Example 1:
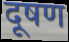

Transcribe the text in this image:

दूषण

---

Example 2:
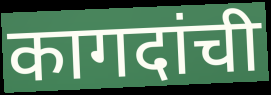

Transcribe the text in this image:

कागदांची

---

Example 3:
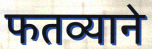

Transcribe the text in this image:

फतव्याने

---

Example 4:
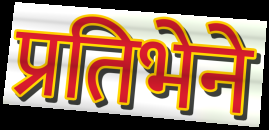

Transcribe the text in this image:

प्रतिभेने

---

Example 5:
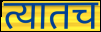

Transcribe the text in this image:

त्यातच